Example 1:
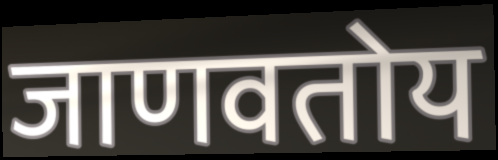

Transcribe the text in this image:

जाणवतोय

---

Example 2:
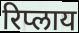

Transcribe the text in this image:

रिप्लाय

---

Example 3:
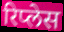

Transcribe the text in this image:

रिप्लेस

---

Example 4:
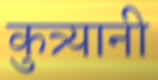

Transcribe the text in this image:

कुत्र्यानी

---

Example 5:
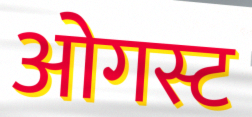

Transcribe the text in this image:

ओगस्ट